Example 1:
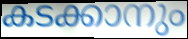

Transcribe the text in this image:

കടക്കാനും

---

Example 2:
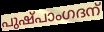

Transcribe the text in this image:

പുഷ്പാംഗദന്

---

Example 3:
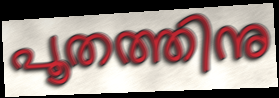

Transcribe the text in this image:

പൂതത്തിനു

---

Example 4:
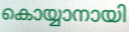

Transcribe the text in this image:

കൊയ്യാനായി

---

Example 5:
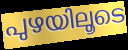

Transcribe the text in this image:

പുഴയിലൂടെ